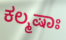
ಕಲ್ಮಷಾಃ